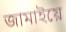
জামাইয়ে